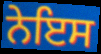
ਨੇਇਸ